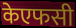
केएफसी